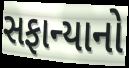
સફાન્યાનો